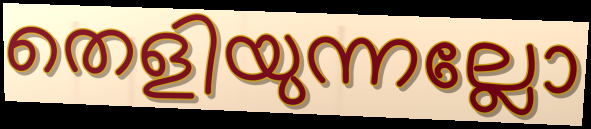
തെളിയുന്നല്ലോ